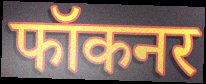
फॉकनर